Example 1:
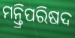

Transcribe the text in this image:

ମନ୍ତ୍ରିପରିଷଦ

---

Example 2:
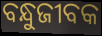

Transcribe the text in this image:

ବନ୍ଧୁଜୀବକ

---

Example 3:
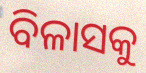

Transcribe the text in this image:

ବିଳାସକୁ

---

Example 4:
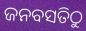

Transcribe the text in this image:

ଜନବସତିଠୁ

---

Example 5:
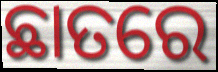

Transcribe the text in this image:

ଛାତରେ